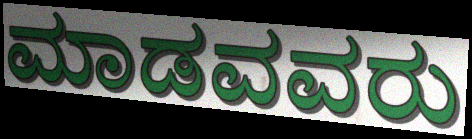
ಮಾಡವವರು